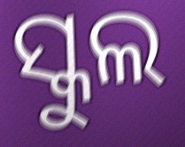
ସ୍କୁଲ